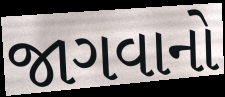
જાગવાનો